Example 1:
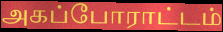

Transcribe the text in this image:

அகப்போராட்டம்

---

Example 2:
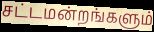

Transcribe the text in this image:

சட்டமன்றங்களும்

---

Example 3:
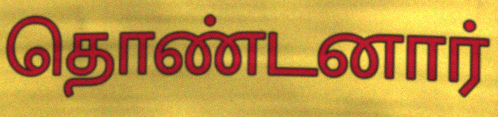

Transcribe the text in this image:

தொண்டனார்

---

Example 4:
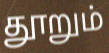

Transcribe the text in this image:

தூறும்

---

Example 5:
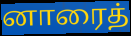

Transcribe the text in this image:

னாரைத்